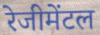
रेजीमेंटल